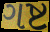
ગષ્ટ